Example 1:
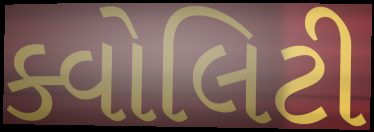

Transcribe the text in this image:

ક્વોલિટી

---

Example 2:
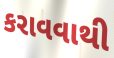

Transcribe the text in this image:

કરાવવાથી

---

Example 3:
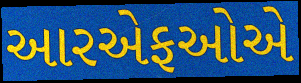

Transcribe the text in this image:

આરએફઓએ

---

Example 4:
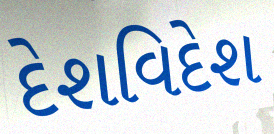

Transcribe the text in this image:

દેશવિદેશ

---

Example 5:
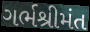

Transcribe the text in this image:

ગર્ભશ્રીમંત